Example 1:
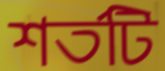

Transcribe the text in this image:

শর্তটি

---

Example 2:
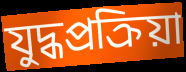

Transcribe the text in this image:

যুদ্ধপ্রক্রিয়া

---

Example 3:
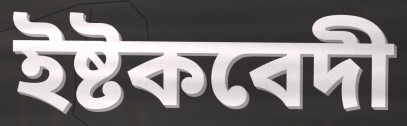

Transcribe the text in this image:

ইষ্টকবেদী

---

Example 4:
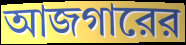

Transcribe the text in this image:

আজগারের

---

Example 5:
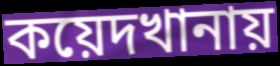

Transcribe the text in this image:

কয়েদখানায়